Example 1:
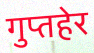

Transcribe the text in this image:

गुप्तहेर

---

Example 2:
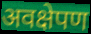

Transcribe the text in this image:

अवक्षेपण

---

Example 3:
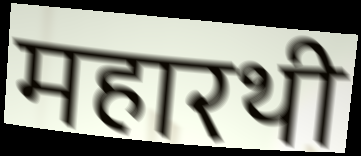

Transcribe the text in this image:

महारथी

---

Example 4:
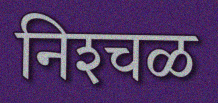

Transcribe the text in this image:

निश्‍चळ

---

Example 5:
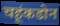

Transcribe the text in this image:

चहूंकडोन